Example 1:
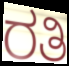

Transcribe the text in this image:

ರತಿ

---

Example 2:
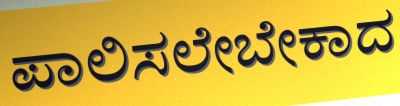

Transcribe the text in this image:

ಪಾಲಿಸಲೇಬೇಕಾದ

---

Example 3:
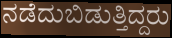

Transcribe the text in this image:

ನಡೆದುಬಿಡುತ್ತಿದ್ದರು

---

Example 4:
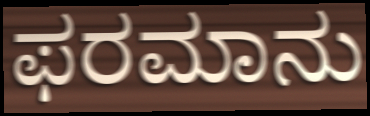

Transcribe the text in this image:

ಫರಮಾನು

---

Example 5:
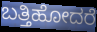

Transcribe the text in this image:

ಬತ್ತಿಹೋದರೆ